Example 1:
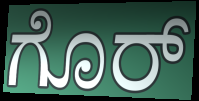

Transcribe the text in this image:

ಗೊರ್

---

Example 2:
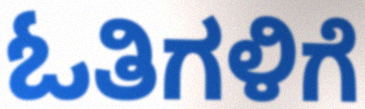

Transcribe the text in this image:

ಓತಿಗಳಿಗೆ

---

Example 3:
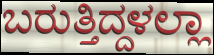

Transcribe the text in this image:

ಬರುತ್ತಿದ್ದಳಲ್ಲಾ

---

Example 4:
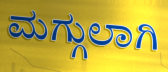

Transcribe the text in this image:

ಮಗ್ಗುಲಾಗಿ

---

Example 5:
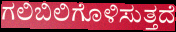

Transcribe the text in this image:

ಗಲಿಬಿಲಿಗೊಳಿಸುತ್ತದೆ